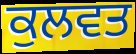
ਕੁਲਵਤ